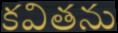
కవితను